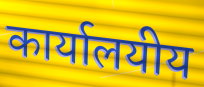
कार्यालयीय